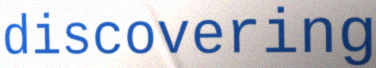
discovering